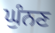
ਘੁੰਨਣ